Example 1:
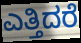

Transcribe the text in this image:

ಎತ್ತಿದರೆ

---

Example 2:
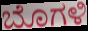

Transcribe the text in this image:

ಬೊಗಳಿ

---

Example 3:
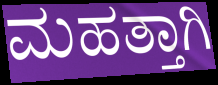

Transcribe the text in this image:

ಮಹತ್ತಾಗಿ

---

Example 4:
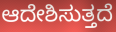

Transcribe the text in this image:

ಆದೇಶಿಸುತ್ತದೆ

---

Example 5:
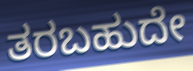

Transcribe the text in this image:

ತರಬಹುದೇ